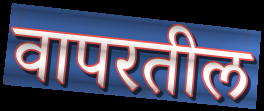
वापरतील